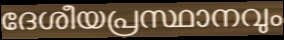
ദേശീയപ്രസ്ഥാനവും